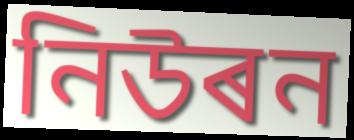
নিউৰন